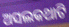
ଅସଲକଥାଟି